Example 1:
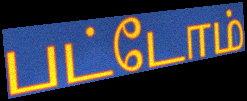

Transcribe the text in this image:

பட்டோம்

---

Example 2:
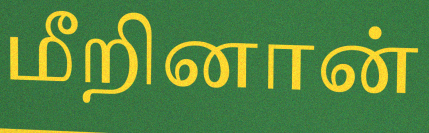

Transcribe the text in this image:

மீறினான்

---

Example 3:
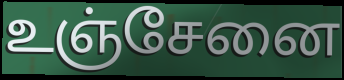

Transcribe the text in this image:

உஞ்சேனை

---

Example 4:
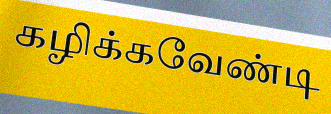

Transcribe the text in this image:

கழிக்கவேண்டி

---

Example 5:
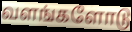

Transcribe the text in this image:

வளங்களோடு